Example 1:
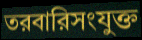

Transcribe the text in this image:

তরবারিসংযুক্ত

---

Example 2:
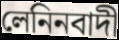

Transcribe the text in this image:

লেনিনবাদী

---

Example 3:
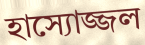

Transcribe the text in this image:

হাস্যোজ্জল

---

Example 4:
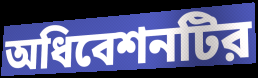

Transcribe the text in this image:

অধিবেশনটির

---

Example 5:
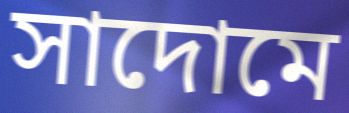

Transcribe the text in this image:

সাদোমে